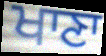
ਖਾਣਾ